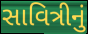
સાવિત્રીનું